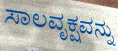
ಸಾಲವೃಕ್ಷವನ್ನು